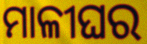
ମାଳୀଘର